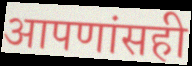
आपणांसही